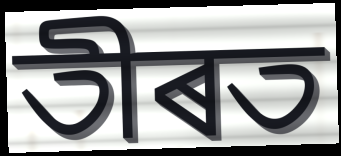
তীৰত